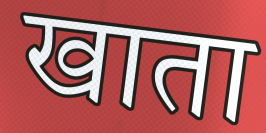
खाता